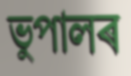
ভুপালৰ